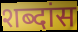
शब्दांस